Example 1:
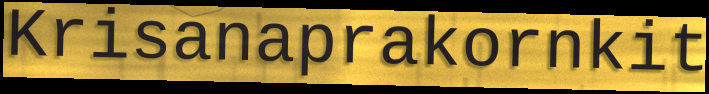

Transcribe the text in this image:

Krisanaprakornkit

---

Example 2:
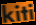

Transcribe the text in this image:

kiti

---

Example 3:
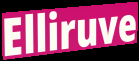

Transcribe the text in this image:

Elliruve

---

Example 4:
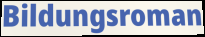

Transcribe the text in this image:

Bildungsroman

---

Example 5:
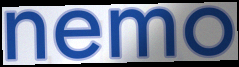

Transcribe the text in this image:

nemo